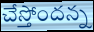
చేస్తోందన్న